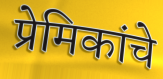
प्रेमिकांचे